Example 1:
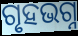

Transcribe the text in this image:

ଗୃହଭଗ୍ନ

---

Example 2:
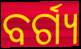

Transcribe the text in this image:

ବର୍ଗ୍ୟ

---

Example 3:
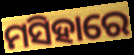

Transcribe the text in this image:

ମସିହାରେ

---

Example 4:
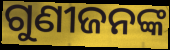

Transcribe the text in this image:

ଗୁଣୀଜନଙ୍କ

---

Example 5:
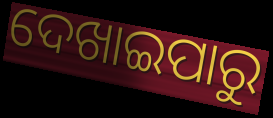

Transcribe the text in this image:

ଦେଖାଇପାରୁ